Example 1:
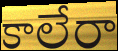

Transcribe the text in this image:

కాలేరా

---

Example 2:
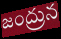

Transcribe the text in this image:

జంద్రున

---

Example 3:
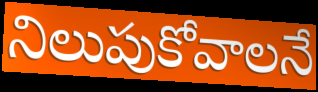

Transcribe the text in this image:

నిలుపుకోవాలనే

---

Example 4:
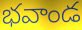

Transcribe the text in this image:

భవాండ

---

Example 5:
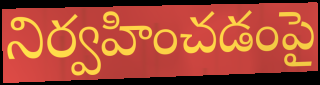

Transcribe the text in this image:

నిర్వహించడంపై